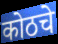
कोठचे